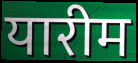
यारीम